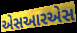
એસઆરએસ